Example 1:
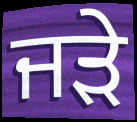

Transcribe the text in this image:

ਜੜੇ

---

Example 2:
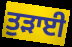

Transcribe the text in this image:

ਤੁੜਾਈ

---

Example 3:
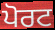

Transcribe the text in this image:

ਪੋਰਟ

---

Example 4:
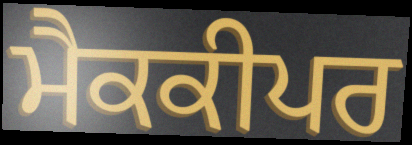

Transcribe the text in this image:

ਮੈਕਕੀਪਰ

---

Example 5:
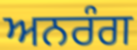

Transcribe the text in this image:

ਅਨਰੰਗ